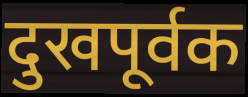
दुखपूर्वक